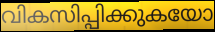
വികസിപ്പിക്കുകയോ